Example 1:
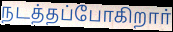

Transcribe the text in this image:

நடத்தப்போகிறார்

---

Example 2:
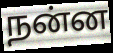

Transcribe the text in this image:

நன்ன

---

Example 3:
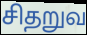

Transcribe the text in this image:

சிதறுவ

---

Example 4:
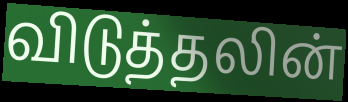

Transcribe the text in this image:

விடுத்தலின்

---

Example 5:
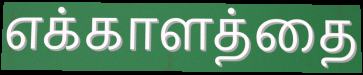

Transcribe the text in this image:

எக்காளத்தை